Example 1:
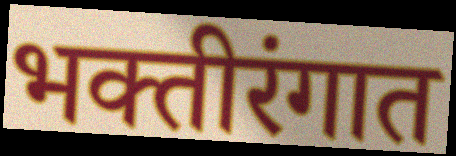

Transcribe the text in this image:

भक्तीरंगात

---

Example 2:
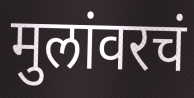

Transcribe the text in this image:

मुलांवरचं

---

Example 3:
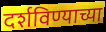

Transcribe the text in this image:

दर्शविण्याच्या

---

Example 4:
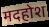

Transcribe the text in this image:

मदहोश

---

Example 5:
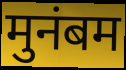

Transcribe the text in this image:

मुनंबम